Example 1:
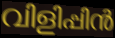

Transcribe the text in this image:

വിളിപ്പിൻ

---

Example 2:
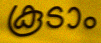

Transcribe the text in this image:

കൂടാം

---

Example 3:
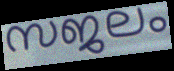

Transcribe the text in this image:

സജലം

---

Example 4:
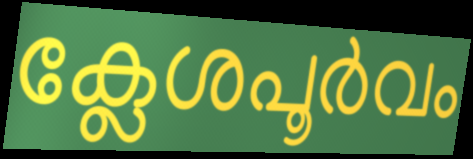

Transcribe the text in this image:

ക്ലേശപൂർവം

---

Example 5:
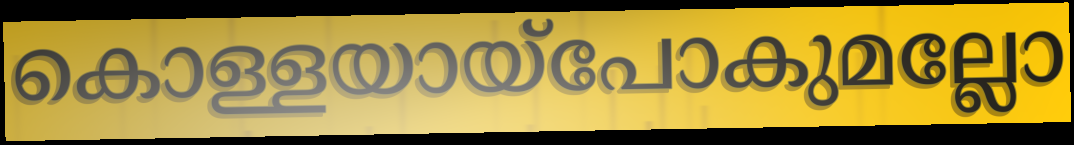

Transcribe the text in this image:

കൊള്ളയായ്പോകുമല്ലോ